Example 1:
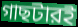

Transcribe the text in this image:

গাছটারই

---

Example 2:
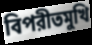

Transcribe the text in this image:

বিপরীতমুখি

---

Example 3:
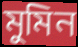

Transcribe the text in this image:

মুমিন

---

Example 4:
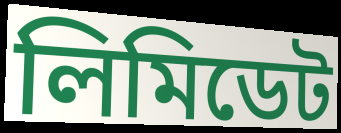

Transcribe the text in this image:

লিমিডেট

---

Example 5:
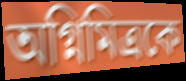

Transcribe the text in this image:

অগ্নিমিত্রকে